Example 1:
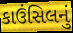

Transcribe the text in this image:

કાઉંસિલનું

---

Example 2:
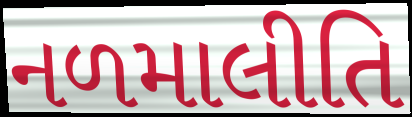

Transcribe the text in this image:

નળમાલીતિ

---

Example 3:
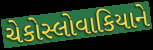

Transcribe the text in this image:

ચેકોસ્લોવાકિયાને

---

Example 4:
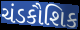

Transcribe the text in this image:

ચંડકૌશિક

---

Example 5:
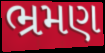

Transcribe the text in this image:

ભ્રમણ